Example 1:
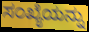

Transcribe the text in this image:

ಸಂಖ್ಯೆಯನ್ನು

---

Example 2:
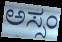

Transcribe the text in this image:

ಅಸ್ಸಂ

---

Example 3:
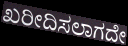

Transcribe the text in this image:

ಖರೀದಿಸಲಾಗದೇ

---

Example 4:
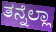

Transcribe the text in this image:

ತನ್ನೆಲ್ಲಾ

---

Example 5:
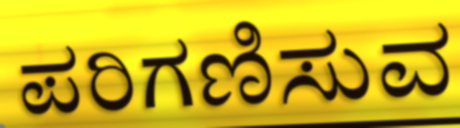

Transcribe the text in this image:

ಪರಿಗಣಿಸುವ